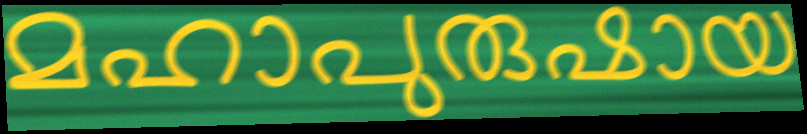
മഹാപുരുഷായ